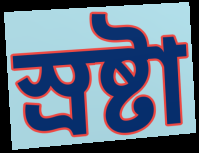
স্রষ্টা